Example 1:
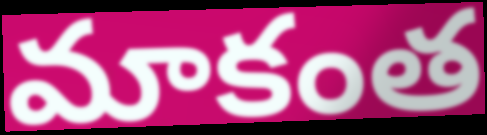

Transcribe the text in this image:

మాకంత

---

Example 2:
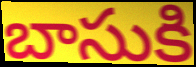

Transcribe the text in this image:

బాసుకి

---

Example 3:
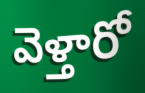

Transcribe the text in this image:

వెళ్తారో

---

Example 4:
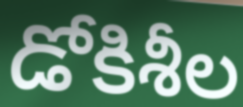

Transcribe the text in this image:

డోకిశీల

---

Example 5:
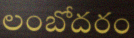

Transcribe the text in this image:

లంబోదరం